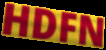
HDFN